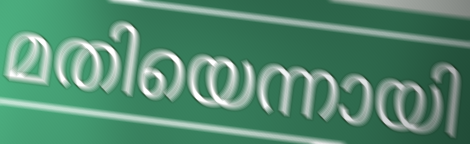
മതിയെന്നായി